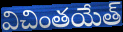
విచింతయేత్